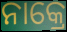
ନାକ୍ରେ